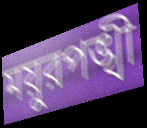
ময়ুরপঙ্খী